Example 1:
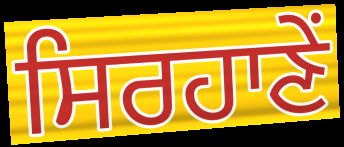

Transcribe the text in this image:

ਸਿਰਹਾਣੇਂ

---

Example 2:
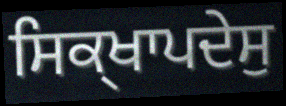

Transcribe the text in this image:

ਸਿਕ੍ਖਾਪਦੇਸੁ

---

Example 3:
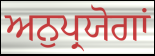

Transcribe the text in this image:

ਅਨੁਪ੍ਰਯੋਗਾਂ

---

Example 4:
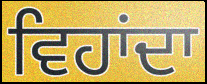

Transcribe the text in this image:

ਵਿਹਾਂਦਾ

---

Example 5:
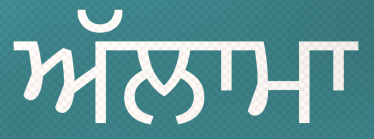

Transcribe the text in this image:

ਅੱਲਾਮਾ